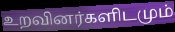
உறவினர்களிடமும்